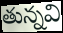
తున్నవి